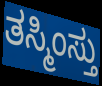
ತಸ್ಮಿಂಸ್ತು